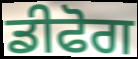
ਡੀਫੋਗ